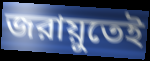
জরায়ুতেই